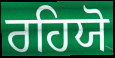
ਰਹਿਯੋ